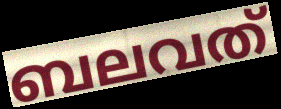
ബലവത്